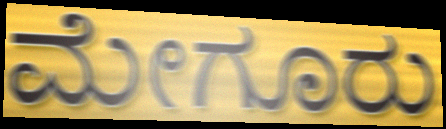
ಮೇಗೂರು